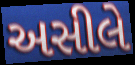
અસીલે